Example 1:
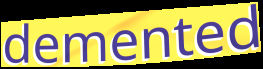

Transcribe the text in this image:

demented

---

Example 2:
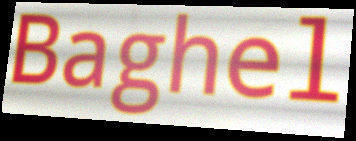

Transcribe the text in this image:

Baghel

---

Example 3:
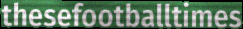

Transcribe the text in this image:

thesefootballtimes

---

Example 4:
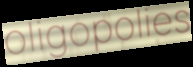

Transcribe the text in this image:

oligopolies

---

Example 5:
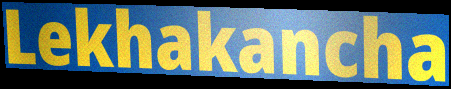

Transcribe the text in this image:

Lekhakancha